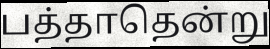
பத்தாதென்று